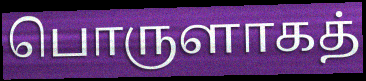
பொருளாகத்